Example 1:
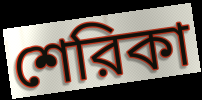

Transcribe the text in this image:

শেরিকা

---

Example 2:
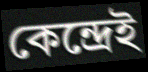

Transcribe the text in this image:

কেন্দ্রেই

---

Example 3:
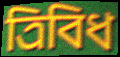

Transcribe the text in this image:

ত্রিবিধ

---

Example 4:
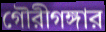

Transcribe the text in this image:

গৌরীগঙ্গার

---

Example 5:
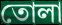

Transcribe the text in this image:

তোলা